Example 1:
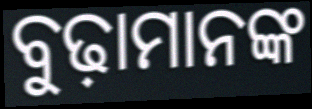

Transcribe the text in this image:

ବୁଢ଼ାମାନଙ୍କ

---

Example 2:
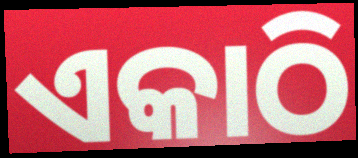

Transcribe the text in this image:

ଏକାଠି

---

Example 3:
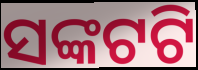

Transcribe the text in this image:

ସଙ୍କଟଟି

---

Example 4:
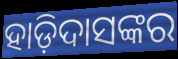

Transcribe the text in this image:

ହାଡ଼ିଦାସଙ୍କର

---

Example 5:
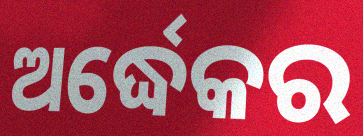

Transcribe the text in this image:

ଅର୍ଦ୍ଧେକର